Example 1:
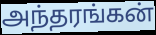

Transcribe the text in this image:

அந்தரங்கன்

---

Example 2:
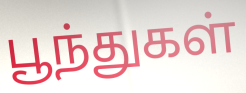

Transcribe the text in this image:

பூந்துகள்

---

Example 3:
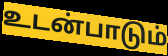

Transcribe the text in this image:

உடன்பாடும்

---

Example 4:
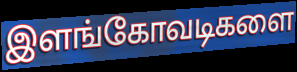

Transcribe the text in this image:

இளங்கோவடிகளை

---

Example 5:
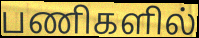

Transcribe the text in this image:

பணிகளில்